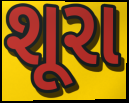
શૂરા